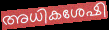
അധികശേഷി